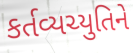
કર્તવ્યચ્યુતિને